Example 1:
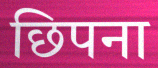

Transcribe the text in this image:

छिपना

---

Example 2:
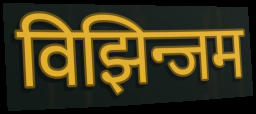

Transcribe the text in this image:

विझिन्जम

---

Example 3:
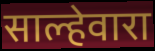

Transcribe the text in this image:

साल्हेवारा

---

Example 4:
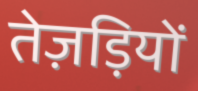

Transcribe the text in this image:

तेज़ड़ियों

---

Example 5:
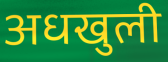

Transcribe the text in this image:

अधखुली